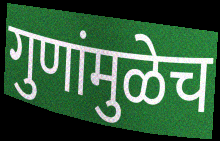
गुणांमुळेच